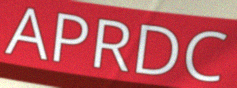
APRDC